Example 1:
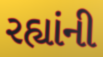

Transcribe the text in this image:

રહ્યાંની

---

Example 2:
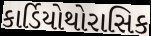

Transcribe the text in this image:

કાર્ડિયોથોરાસિક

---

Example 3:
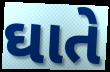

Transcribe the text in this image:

ઘાતે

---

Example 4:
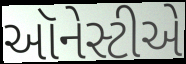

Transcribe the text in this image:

ઑનેસ્ટીએ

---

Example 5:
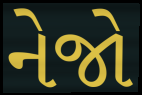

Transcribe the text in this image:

નેજો